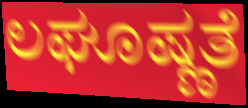
ಲಘೂಷ್ಣತೆ